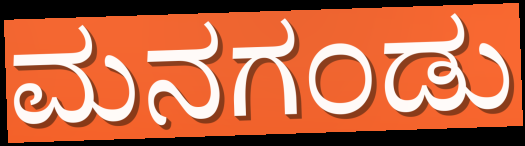
ಮನಗಂಡು